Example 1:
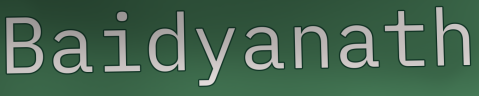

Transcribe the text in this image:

Baidyanath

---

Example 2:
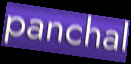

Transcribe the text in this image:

panchal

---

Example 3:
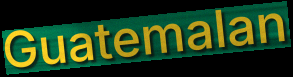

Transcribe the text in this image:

Guatemalan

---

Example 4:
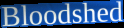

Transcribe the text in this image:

Bloodshed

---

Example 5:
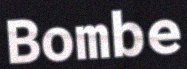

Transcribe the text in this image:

Bombe